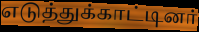
எடுத்துக்காட்டினர்